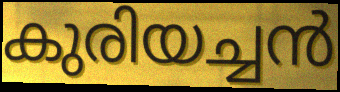
കുരിയച്ചൻ